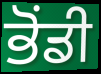
ਭੋਂਡੀ